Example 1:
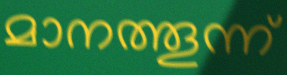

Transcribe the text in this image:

മാനത്തൂന്ന്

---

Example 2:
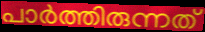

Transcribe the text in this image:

പാർത്തിരുന്നത്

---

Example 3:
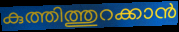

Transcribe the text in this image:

കുത്തിത്തുറക്കാൻ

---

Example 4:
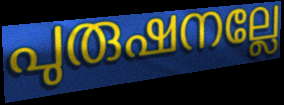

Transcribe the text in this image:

പുരുഷനല്ലേ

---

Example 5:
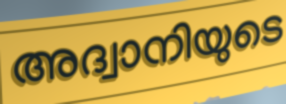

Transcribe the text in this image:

അദ്വാനിയുടെ